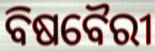
ବିଷବୈରୀ